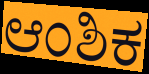
ಆಂಶಿಕ